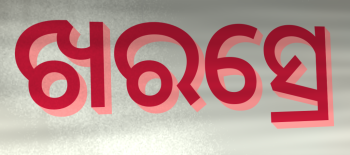
ଖରସ୍ରେ